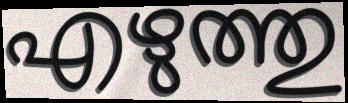
എഴുത്തു